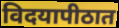
विदयापीठात